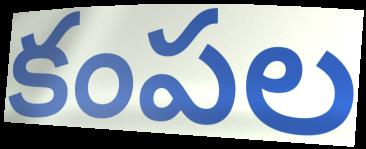
కంపల